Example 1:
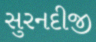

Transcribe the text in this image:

સુરનદીજી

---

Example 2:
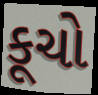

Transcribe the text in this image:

કૂચો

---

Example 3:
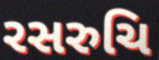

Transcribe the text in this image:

રસરુચિ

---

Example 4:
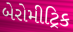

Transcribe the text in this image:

બેરોમીટ્રિક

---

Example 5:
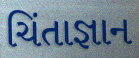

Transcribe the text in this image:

ચિંતાજ્ઞાન